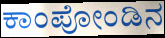
ಕಾಂಪೋಂಡಿನ